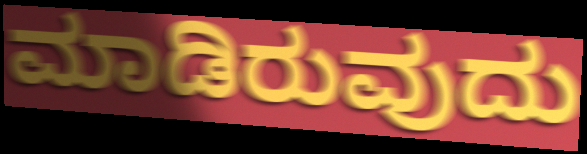
ಮಾಡಿರುವುದು